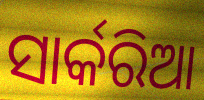
ସାର୍କରିଆ